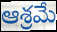
ఆశ్రమే